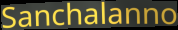
Sanchalanno